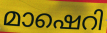
മാഷെറി